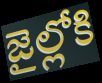
జైల్లోకి